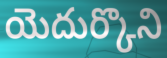
యెదుర్కొని